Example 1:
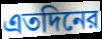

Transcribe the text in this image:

এতদিনের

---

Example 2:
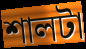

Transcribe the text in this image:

শালটা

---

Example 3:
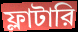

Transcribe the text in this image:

ফ্লাটারি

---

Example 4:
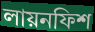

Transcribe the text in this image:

লায়নফিশ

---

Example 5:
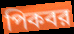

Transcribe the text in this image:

পিকবর